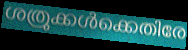
ശത്രുക്കൾക്കെതിരേ